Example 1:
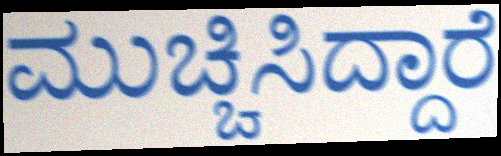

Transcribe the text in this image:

ಮುಚ್ಚಿಸಿದ್ದಾರೆ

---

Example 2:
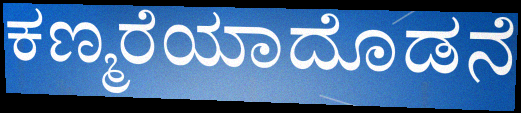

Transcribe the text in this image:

ಕಣ್ಮರೆಯಾದೊಡನೆ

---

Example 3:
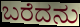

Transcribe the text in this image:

ಬರೆದನು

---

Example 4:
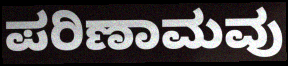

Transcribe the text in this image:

ಪರಿಣಾಮವು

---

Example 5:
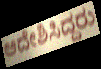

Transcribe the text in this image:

ಆದೇಶಿಸಿದ್ದರು